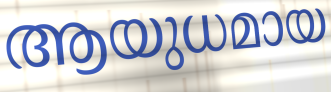
ആയുധമായ